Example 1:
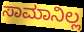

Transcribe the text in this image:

ಸಾಮಾನಿಲ್ಲ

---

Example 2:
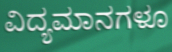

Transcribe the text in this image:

ವಿದ್ಯಮಾನಗಳೂ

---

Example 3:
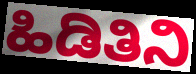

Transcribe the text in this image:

ಹಿಡಿತಿನಿ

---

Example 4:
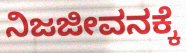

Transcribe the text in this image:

ನಿಜಜೀವನಕ್ಕೆ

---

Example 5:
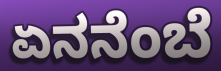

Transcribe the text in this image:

ಏನನೆಂಬೆ